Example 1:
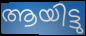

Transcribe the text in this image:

ആയിട്ടു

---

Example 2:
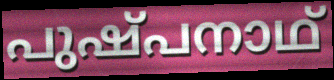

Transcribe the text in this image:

പുഷ്പനാഥ്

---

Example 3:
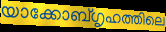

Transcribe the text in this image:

യാക്കോബ്ഗൃഹത്തിലെ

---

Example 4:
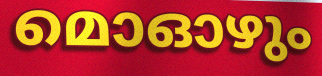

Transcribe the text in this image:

മൊഓഴും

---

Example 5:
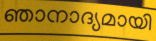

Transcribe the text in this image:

ഞാനാദ്യമായി